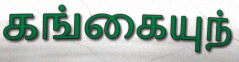
கங்கையுந்